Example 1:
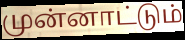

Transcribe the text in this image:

முன்னாட்டும்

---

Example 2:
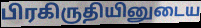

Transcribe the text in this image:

பிரகிருதியினுடைய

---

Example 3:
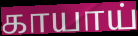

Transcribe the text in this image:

காயாய்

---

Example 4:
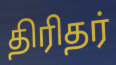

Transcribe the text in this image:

திரிதர்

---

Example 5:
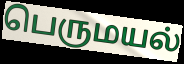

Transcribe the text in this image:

பெருமயல்